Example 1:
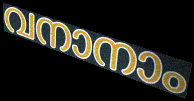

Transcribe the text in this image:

വനാനാം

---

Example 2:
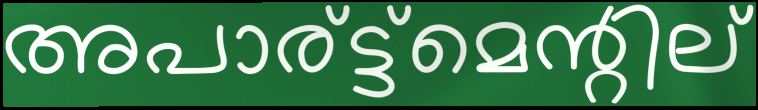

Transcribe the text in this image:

അപാര്ട്ട്മെന്റില്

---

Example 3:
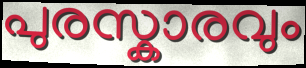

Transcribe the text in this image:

പുരസ്കാരവും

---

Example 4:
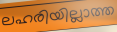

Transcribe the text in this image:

ലഹരിയില്ലാത്ത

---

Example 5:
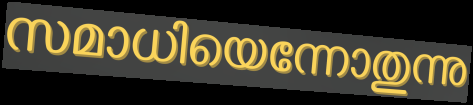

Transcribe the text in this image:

സമാധിയെന്നോതുന്നു